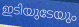
ഇടിയുടേയും